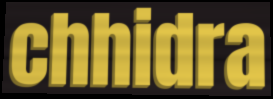
chhidra